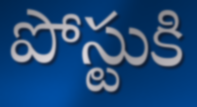
పోస్టుకి